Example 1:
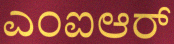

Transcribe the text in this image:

ಎಂಐಆರ್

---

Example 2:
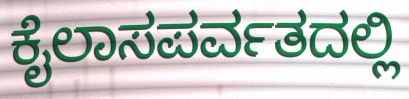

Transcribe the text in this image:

ಕೈಲಾಸಪರ್ವತದಲ್ಲಿ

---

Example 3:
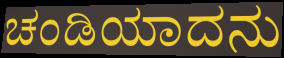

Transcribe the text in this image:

ಚಂಡಿಯಾದನು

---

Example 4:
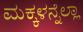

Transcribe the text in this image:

ಮಕ್ಕಳನ್ನೆಲ್ಲಾ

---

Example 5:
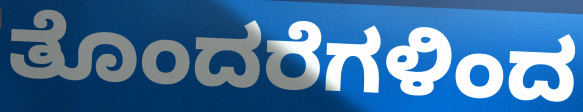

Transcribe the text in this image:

ತೊಂದರೆಗಳಿಂದ